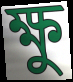
ক্ষু